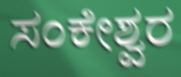
ಸಂಕೇಶ್ವರ